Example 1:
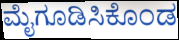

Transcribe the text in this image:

ಮೈಗೂಡಿಸಿಕೊಂಡ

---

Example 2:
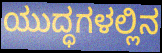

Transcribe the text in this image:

ಯುದ್ಧಗಳಲ್ಲಿನ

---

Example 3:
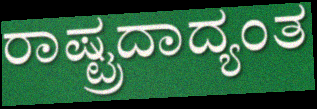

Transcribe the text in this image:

ರಾಷ್ಟ್ರದಾದ್ಯಂತ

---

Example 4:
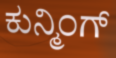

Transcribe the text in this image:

ಕುನ್ಮಿಂಗ್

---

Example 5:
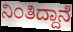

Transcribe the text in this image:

ನಿಂತಿದ್ದಾನೆ